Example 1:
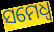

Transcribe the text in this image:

ସମେଧ୍ୱ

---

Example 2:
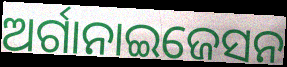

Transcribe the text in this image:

ଅର୍ଗାନାଇଜେସନ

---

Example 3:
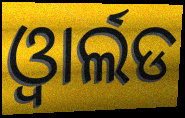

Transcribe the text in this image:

ଓ୍ବାର୍ଲଡ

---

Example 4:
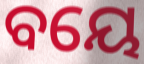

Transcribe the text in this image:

ବୟେ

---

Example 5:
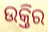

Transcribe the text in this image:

ଉକ୍ତିର